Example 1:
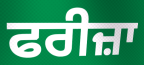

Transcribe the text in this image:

ਫਰੀਜ਼ਾ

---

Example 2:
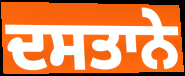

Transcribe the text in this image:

ਦਸਤਾਨੇ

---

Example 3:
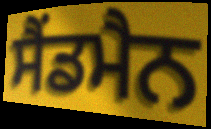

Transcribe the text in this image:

ਸੈਂਡਮੈਨ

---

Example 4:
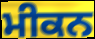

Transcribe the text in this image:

ਮੀਕਨ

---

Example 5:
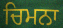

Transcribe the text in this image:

ਚਿਮਨਾ